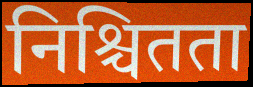
निश्चितता